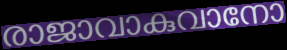
രാജാവാകുവാനോ